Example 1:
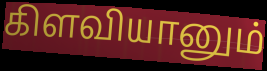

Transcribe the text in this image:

கிளவியானும்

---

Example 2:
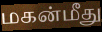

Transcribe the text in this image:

மகன்மீது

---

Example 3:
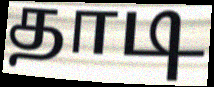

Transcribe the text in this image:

தாடி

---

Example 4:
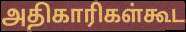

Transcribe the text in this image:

அதிகாரிகள்கூட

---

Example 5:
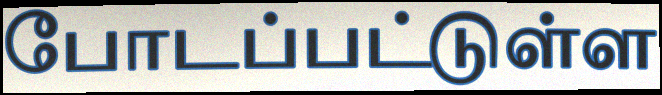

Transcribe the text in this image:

போடப்பட்டுள்ள